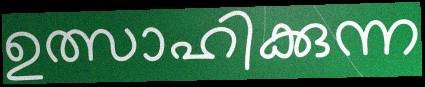
ഉത്സാഹിക്കുന്ന